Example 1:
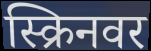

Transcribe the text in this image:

स्क्रिनवर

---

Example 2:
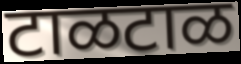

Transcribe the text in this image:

टाळटाळ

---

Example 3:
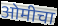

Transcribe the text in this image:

ओमीचा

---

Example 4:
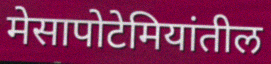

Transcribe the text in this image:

मेसापोटेमियांतील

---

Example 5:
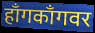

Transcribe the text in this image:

हाँगकाँगवर